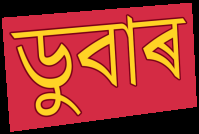
ডুবাৰ